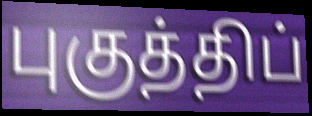
புகுத்திப்